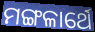
ମଙ୍ଗଳାର୍ଥେ